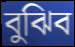
বুঝিব